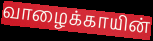
வாழைக்காயின்